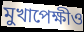
মুখাপেক্ষীও